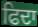
ਫਿਦਾ